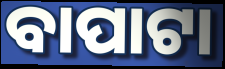
ବାପାଟା